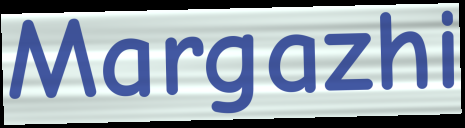
Margazhi